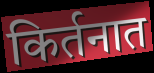
किर्तनात